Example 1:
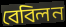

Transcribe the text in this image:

বেবিলন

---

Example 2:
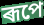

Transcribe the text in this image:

ৰূপে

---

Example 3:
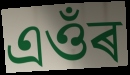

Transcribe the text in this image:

এওঁৰ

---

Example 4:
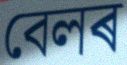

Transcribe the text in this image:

বেলৰ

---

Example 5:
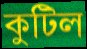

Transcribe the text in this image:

কুটিল